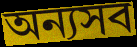
অন্যসব